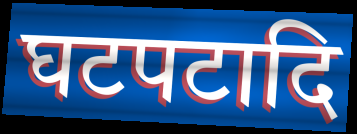
घटपटादि